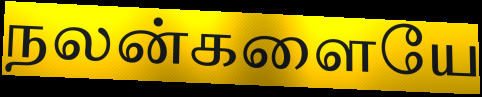
நலன்களையே